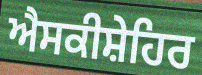
ਐਸਕੀਸ਼ੇਹਿਰ